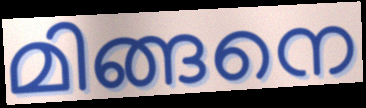
മിങ്ങനെ